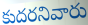
కుదరనివారు